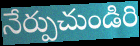
నేర్పుచుండిరి